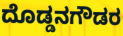
ದೊಡ್ಡನಗೌಡರ